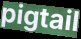
pigtail